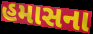
હમાસના